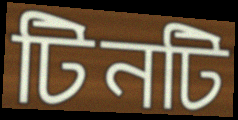
টিনটি